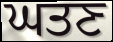
ਘਤਣ